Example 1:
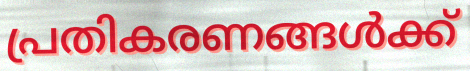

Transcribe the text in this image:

പ്രതികരണങ്ങൾക്ക്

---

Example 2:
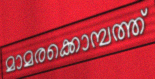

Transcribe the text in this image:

മാമരക്കൊമ്പത്ത്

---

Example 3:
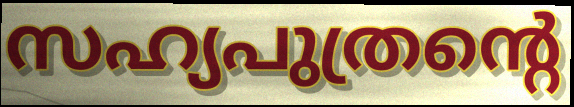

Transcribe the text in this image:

സഹ്യപുത്രന്റെ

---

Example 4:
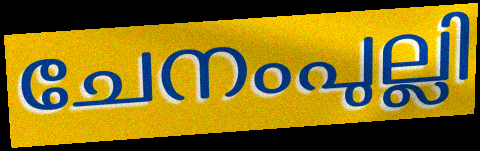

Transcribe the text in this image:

ചേനംപുല്ലി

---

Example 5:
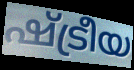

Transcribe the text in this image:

ഷ്ട്രീയ